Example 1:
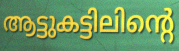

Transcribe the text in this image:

ആട്ടുകട്ടിലിന്റെ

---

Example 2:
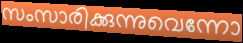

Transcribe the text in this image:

സംസാരിക്കുന്നുവെന്നോ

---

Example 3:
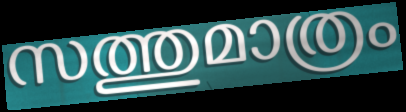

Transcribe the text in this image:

സത്തുമാത്രം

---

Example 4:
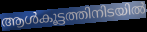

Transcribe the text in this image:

ആൾകൂട്ടത്തിനിടയിൽ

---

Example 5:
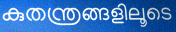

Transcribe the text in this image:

കുതന്ത്രങ്ങളിലൂടെ